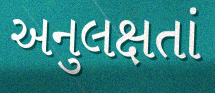
અનુલક્ષતાં